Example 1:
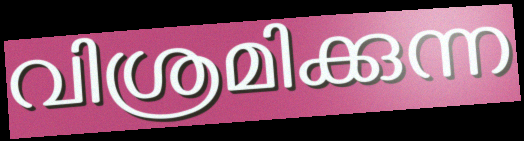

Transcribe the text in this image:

വിശ്രമിക്കുന്ന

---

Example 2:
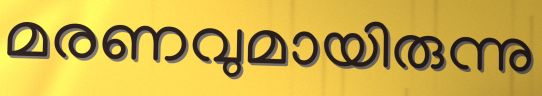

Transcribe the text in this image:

മരണവുമായിരുന്നു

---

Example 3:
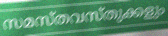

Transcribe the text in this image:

സമസ്തവസ്തുക്കളും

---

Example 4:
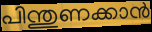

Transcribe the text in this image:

പിന്തുണക്കാൻ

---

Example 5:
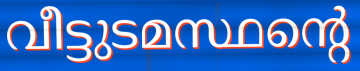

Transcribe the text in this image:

വീട്ടുടമസ്ഥന്റെ